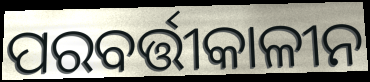
ପରବର୍ତ୍ତୀକାଳୀନ